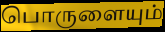
பொருளையும்